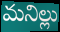
మనిల్లు